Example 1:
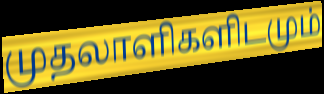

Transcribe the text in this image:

முதலாளிகளிடமும்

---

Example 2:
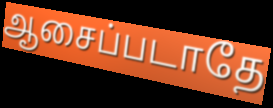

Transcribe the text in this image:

ஆசைப்படாதே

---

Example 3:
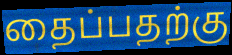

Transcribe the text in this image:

தைப்பதற்கு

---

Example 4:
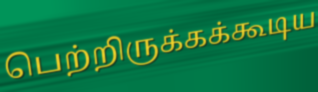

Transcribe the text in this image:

பெற்றிருக்கக்கூடிய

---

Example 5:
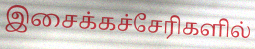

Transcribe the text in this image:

இசைக்கச்சேரிகளில்